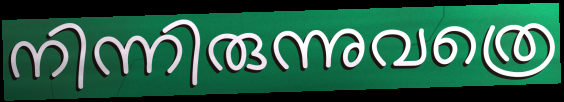
നിന്നിരുന്നുവത്രെ